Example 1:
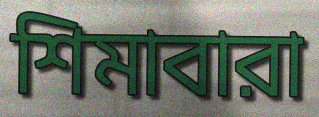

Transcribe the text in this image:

শিমাবারা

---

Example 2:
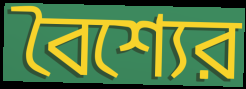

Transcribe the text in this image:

বৈশ্যের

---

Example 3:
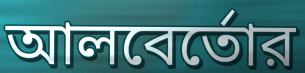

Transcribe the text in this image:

আলবের্তোর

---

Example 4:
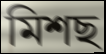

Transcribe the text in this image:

মিশছ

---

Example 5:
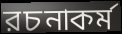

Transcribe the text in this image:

রচনাকর্ম